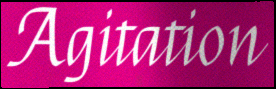
Agitation